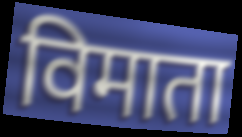
विमाता